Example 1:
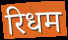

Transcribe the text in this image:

रिधम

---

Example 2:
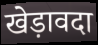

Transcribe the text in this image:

खेड़ावदा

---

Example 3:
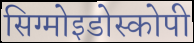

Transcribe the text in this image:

सिग्मोइडोस्कोपी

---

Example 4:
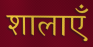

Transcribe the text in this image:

शालाएँ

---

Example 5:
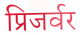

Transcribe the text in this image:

प्रिजर्वर